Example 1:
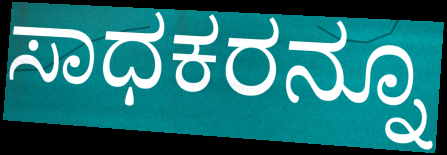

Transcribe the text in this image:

ಸಾಧಕರನ್ನೂ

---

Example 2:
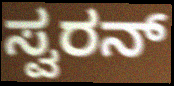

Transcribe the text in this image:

ಸ್ವರನ್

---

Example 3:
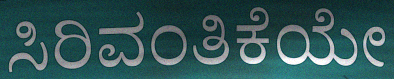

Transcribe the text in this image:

ಸಿರಿವಂತಿಕೆಯೇ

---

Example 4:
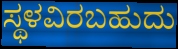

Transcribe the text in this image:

ಸ್ಥಳವಿರಬಹುದು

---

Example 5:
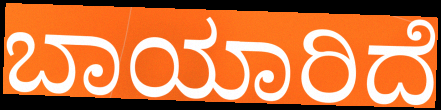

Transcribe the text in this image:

ಬಾಯಾರಿದೆ